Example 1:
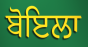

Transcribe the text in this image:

ਬੋਇਲਾ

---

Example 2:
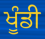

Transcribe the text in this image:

ਖੂੰਡੀ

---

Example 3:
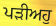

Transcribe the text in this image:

ਪੜੀਅਹੁ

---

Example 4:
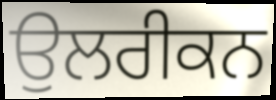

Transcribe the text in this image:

ਉਲਰੀਕਨ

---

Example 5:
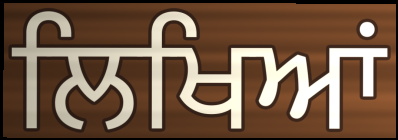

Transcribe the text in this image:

ਲਿਖਿਆਂ